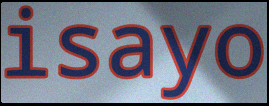
isayo